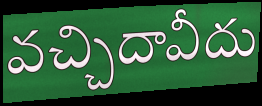
వచ్చిదావీదు